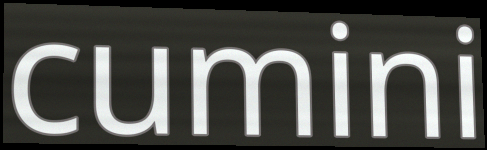
cumini